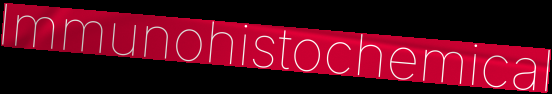
Immunohistochemical